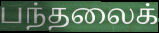
பந்தலைக்